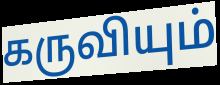
கருவியும்